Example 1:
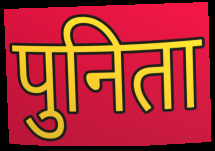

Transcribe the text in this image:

पुनिता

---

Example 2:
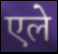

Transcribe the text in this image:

एले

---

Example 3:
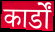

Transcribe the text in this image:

कार्डों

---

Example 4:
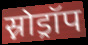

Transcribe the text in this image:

स्नोड्रॉप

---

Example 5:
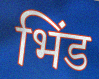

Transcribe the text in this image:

भिंड